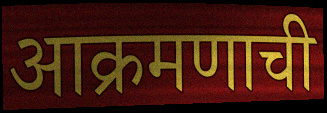
आक्रमणाची